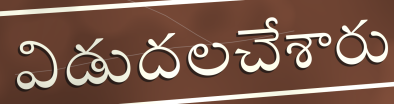
విడుదలచేశారు